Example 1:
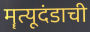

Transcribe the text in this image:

मॄत्यूदंडाची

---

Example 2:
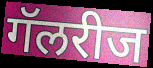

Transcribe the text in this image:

गॅलरीज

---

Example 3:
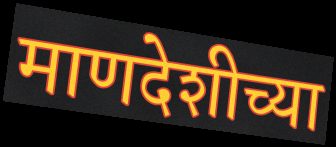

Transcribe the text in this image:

माणदेशीच्या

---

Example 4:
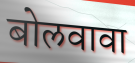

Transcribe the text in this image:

बोलवावा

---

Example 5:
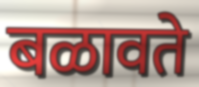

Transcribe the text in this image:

बळावते